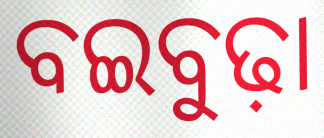
ବଇବୁଢ଼ା